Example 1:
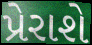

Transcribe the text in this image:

પ્રેરાશે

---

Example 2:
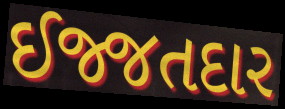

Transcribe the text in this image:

ઈજ્જતદાર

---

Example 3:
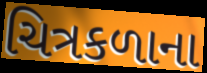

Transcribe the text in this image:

ચિત્રકળાના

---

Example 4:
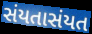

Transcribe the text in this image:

સંયતાસંયત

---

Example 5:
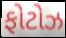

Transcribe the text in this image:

ફોટોઝ